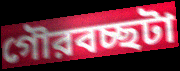
গৌরবচ্ছটা